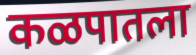
कळपातला